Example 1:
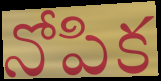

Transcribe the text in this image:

నోపిక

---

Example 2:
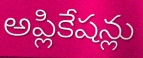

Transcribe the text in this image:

అప్లికేషన్లు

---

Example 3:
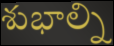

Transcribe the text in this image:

శుభాల్ని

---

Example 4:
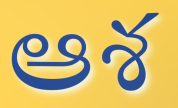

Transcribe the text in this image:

ఆశ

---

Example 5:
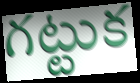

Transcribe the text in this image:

గట్టుక